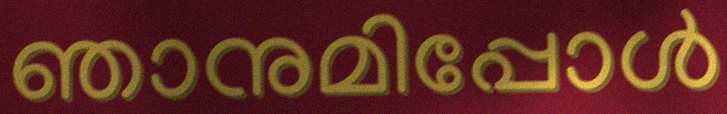
ഞാനുമിപ്പോൾ